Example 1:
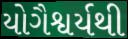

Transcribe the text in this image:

યોગૈશ્વર્યથી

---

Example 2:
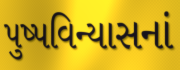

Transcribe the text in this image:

પુષ્પવિન્યાસનાં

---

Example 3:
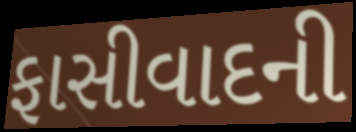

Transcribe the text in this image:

ફાસીવાદની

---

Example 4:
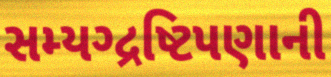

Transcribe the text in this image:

સમ્યગ્દ્રષ્ટિપણાની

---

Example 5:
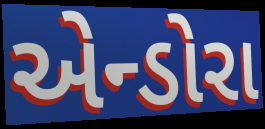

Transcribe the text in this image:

એન્ડોરા